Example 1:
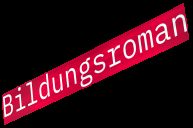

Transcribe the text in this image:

Bildungsroman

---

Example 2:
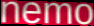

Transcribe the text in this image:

nemo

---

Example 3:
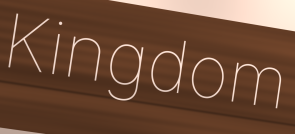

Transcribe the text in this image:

Kingdom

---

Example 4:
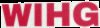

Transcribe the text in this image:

WIHG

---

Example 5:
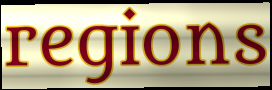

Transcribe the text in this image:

regions